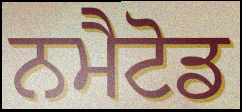
ਨਮੈਟੋਡ